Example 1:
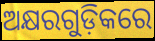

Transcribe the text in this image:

ଅକ୍ଷରଗୁଡ଼ିକରେ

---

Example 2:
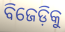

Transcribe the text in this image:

ବିଜେଡ଼ିକୁ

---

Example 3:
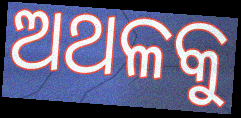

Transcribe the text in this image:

ଅଥଳକୁ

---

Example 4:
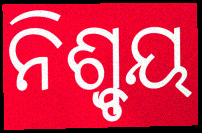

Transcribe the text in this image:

ନିଶ୍ୱ୍ଚୟ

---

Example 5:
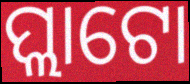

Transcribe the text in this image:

ପ୍ଲାଟୋ